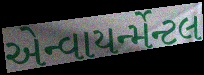
એન્વાયર્ન્મેન્ટલ